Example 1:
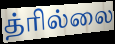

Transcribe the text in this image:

த்ரில்லை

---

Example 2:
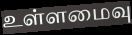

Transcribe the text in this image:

உள்ளமைவு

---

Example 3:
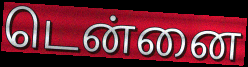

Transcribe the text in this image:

டென்னை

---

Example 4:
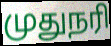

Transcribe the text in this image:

முதுநரி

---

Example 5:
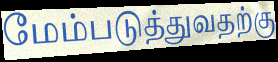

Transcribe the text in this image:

மேம்படுத்துவதற்கு